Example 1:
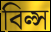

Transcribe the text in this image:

বিল্স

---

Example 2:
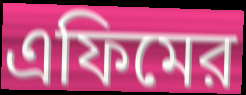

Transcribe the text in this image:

এফিমের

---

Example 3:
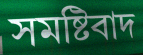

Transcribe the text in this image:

সমষ্টিবাদ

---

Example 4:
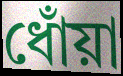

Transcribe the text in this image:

ধোঁয়া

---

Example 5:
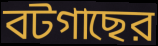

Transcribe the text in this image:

বটগাছের